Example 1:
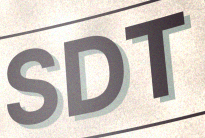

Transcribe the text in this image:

SDT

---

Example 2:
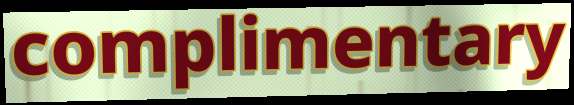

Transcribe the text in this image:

complimentary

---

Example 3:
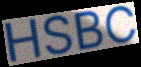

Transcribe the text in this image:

HSBC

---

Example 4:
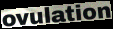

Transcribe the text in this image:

ovulation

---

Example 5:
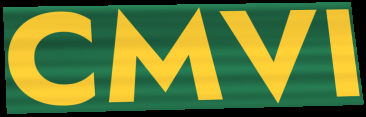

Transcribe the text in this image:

CMVI